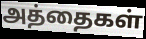
அத்தைகள்